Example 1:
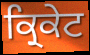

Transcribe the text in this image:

ਕ੍ਰਿਕੇਟ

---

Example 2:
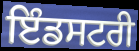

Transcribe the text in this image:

ਇੰਡਸਟਰੀ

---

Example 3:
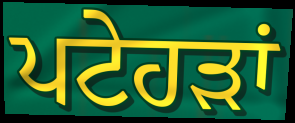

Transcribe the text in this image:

ਪਟੇਹੜਾਂ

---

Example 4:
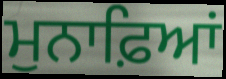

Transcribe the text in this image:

ਮੁਨਾਫ਼ਿਆਂ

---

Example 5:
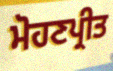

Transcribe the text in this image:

ਮੋਹਣਪ੍ਰੀਤ